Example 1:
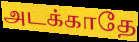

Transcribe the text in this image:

அடக்காதே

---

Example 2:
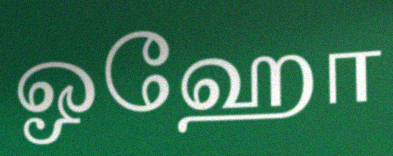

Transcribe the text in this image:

ஓஹோ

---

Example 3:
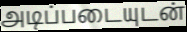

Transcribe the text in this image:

அடிப்படையுடன்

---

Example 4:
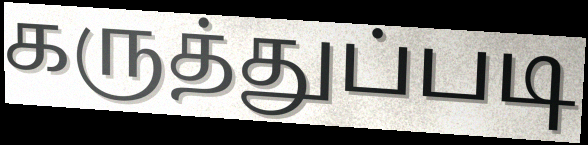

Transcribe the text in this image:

கருத்துப்படி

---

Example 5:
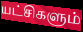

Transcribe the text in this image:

யட்சிகளும்